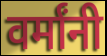
वर्मांनी